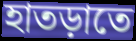
হাতড়াতে